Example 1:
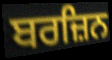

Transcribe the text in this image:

ਬਰਜ਼ਿਨ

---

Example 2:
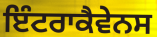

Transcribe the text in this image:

ਇੰਟਰਾਕੈਵੇਨਸ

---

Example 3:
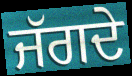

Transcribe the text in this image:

ਜੱਗਦੇ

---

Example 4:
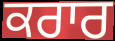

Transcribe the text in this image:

ਕਰਾਰ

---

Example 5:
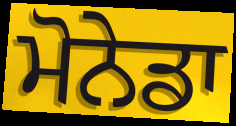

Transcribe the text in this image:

ਮੋਨੇਡਾ